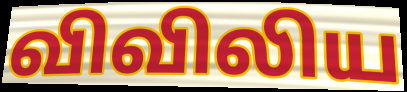
விவிலிய